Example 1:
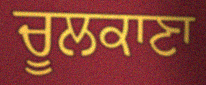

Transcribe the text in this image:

ਚੂਲਕਾਣਾ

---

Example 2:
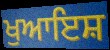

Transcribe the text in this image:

ਖੁਆਇਸ਼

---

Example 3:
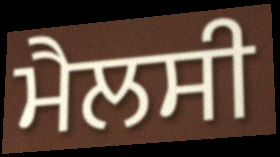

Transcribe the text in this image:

ਮੈਲਸੀ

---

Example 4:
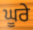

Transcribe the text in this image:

ਘੂਰੇ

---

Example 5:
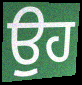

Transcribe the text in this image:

ਉੁਹ